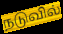
நடுவில்